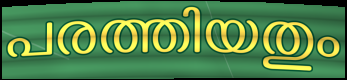
പരത്തിയതും